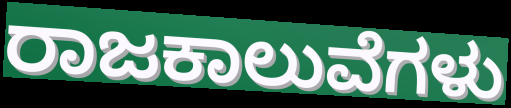
ರಾಜಕಾಲುವೆಗಳು